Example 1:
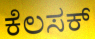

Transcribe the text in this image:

ಕೆಲಸಕ್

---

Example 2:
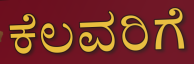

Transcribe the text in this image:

ಕೆಲವರಿಗೆ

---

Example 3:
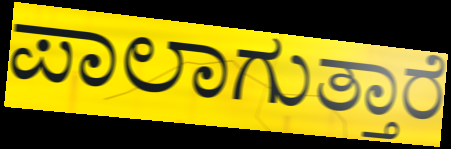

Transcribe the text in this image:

ಪಾಲಾಗುತ್ತಾರೆ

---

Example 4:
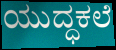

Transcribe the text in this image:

ಯುದ್ಧಕಲೆ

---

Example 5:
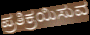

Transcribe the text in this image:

ಪ್ರತಿಕ್ರಯಿಸುವ